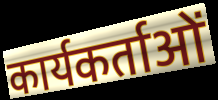
कार्यकर्ताओं